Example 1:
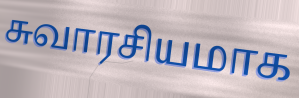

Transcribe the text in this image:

சுவாரசியமாக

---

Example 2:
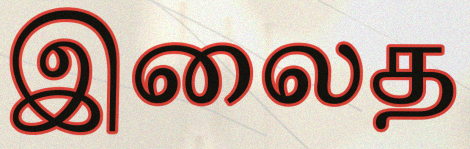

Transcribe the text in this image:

இலைத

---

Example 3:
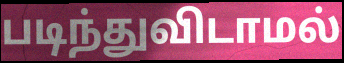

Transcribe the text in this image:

படிந்துவிடாமல்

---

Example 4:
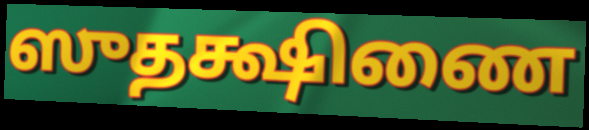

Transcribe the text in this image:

ஸுதக்ஷிணை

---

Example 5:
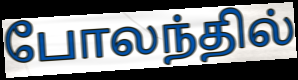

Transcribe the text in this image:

போலந்தில்